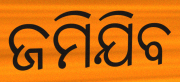
ଜମିଯିବ